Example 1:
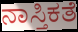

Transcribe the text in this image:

ನಾಸ್ತಿಕತೆ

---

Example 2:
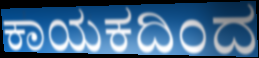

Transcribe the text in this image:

ಕಾಯಕದಿಂದ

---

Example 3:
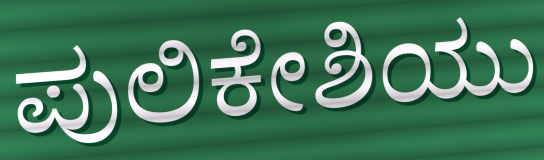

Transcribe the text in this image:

ಪುಲಿಕೇಶಿಯು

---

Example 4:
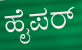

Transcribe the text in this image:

ಹೈಪರ್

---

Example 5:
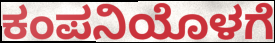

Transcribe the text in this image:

ಕಂಪನಿಯೊಳಗೆ